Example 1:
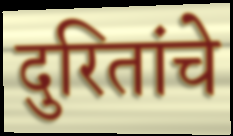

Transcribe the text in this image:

दुरितांचे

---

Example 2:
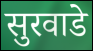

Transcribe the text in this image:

सुरवाडे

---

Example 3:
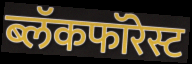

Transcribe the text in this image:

ब्लॅकफॉरेस्ट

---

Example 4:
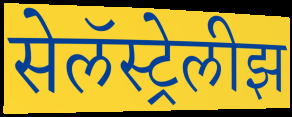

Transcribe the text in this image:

सेलॅस्ट्रेलीझ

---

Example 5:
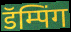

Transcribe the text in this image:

डॅम्पिंग